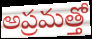
అప్రమత్తో